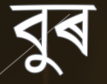
বুৰ